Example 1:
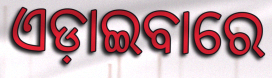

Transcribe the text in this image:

ଏଡ଼ାଇବାରେ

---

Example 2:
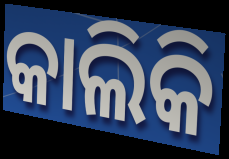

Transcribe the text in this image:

କାଲିକି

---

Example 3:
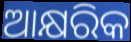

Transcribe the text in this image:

ଆକ୍ଷରିକ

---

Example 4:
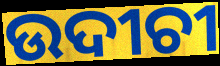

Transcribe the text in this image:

ଉଦୀଚୀ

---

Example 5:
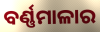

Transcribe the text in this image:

ବର୍ଣ୍ଣମାଳାର